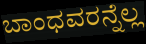
ಬಾಂಧವರನ್ನೆಲ್ಲ